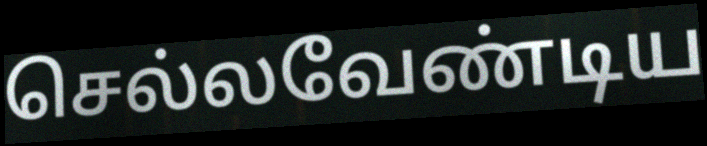
செல்லவேண்டிய